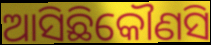
ଆସିଛିକୌଣସି